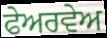
ਫੇਅਰਵੇਅ